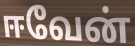
ஈவேன்